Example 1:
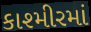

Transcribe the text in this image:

કાશ્મીરમાં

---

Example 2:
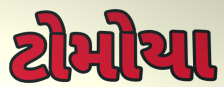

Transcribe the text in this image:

ટોમોયા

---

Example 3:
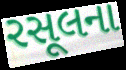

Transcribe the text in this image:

રસૂલના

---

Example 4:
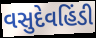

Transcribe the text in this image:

વસુદેવહિંડી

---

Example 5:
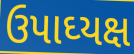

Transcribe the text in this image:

ઉપાઘ્યક્ષ